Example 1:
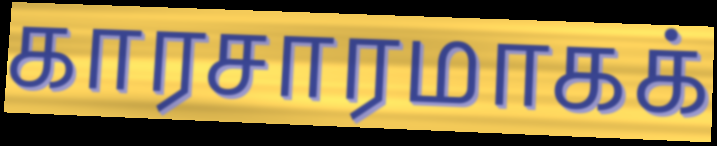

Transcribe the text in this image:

காரசாரமாகக்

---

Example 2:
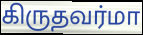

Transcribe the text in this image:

கிருதவர்மா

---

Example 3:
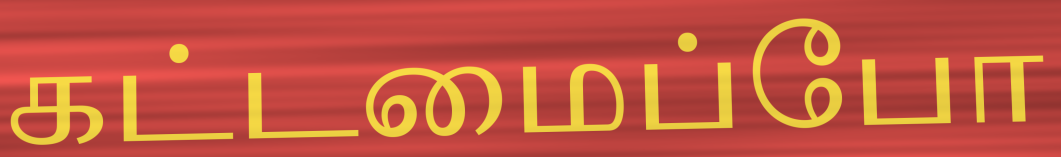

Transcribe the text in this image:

கட்டமைப்போ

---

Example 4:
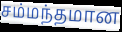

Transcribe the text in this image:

சம்மந்தமான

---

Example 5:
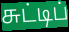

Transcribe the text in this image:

சுட்டிப்